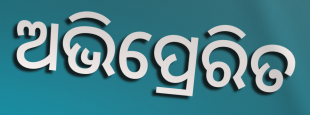
ଅଭିପ୍ରେରିତ